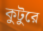
কুটুরে